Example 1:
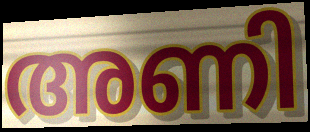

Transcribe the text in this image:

അണി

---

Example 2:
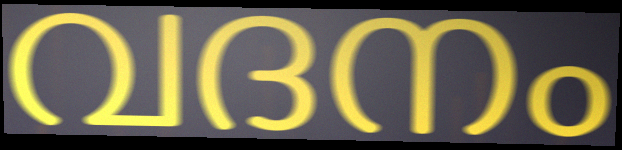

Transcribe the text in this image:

വദനം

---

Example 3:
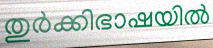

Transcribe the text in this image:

തുർക്കിഭാഷയിൽ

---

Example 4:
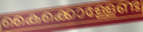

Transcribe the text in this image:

കൈക്കൊള്ളേണ്ട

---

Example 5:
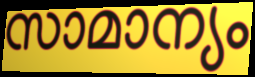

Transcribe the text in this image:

സാമാന്യം